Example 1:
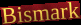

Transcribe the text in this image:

Bismark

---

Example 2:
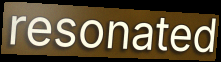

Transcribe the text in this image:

resonated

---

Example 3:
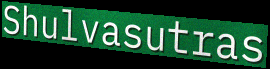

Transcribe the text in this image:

Shulvasutras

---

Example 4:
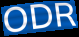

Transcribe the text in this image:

ODR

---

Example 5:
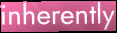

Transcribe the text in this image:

inherently